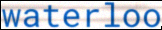
waterloo